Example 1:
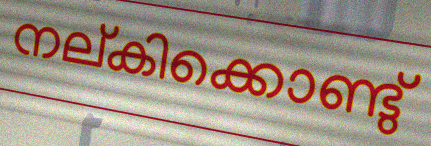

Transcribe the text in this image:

നല്കിക്കൊണ്ടു്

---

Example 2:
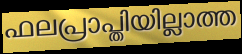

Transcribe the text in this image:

ഫലപ്രാപ്തിയില്ലാത്ത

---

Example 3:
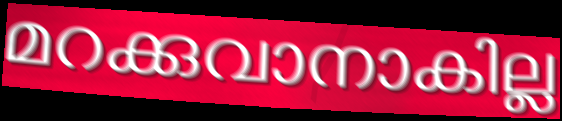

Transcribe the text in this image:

മറക്കുവാനാകില്ല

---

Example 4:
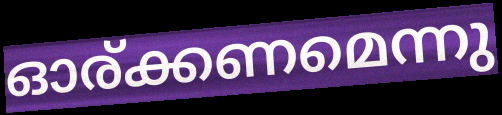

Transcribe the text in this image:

ഓര്ക്കണമെന്നു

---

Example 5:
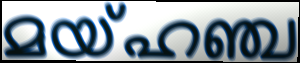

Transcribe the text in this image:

മയ്ഹഞ്ച